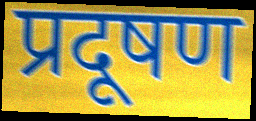
प्रदूषण